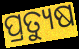
ପ୍ରତ୍ୟୁଷ